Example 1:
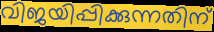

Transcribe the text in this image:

വിജയിപ്പിക്കുന്നതിന്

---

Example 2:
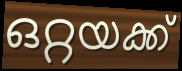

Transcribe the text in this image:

ഒറ്റയക്ക്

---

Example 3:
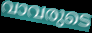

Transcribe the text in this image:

വാവരുടെ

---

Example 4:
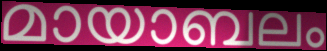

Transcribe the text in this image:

മായാബലം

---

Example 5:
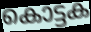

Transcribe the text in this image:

കൊട്ടക